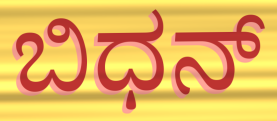
ಬಿಧನ್